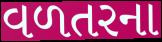
વળતરના